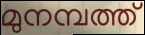
മുനമ്പത്ത്